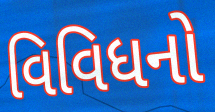
વિવિધનો